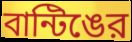
বান্টিঙের